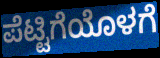
ಪೆಟ್ಟಿಗೆಯೊಳಗೆ